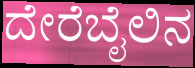
ದೇರೆಬೈಲಿನ